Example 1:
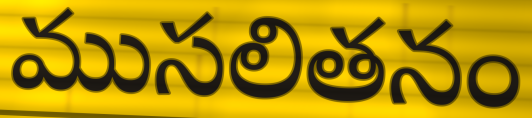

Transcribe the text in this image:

ముసలితనం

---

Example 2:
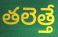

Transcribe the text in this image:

తలెత్తే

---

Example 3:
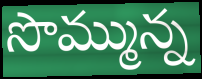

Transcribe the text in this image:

సొమ్మున్న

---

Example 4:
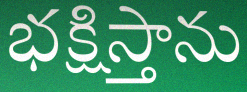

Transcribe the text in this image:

భక్షిస్తాను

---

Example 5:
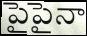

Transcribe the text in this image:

పైపైనా